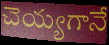
చెయ్యగానే